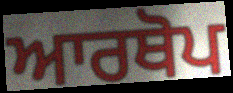
ਆਰਥੋਪ